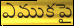
ఎముకపై